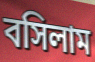
বসিলাম